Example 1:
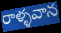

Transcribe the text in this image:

రాళ్ళవాన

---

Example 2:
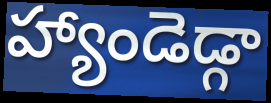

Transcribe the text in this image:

హ్యాండెడ్గా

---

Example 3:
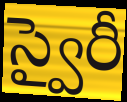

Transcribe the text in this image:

స్వైరీ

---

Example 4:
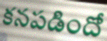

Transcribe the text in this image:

కనపడిందో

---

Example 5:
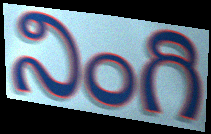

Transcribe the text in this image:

నింగి